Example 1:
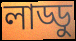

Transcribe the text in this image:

লাড্ডু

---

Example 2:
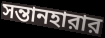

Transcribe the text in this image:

সন্তানহারার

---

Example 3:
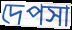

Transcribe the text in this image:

দেপসা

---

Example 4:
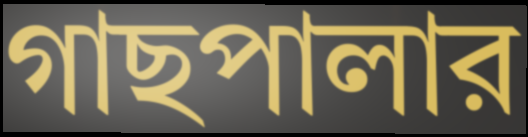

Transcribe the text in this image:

গাছপালার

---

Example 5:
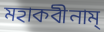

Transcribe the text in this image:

মহাকবীনাম্